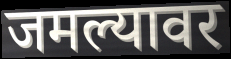
जमल्यावर